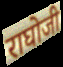
राघोजी